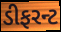
ડીફરન્ટ